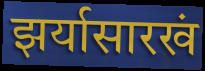
झर्यासारखं